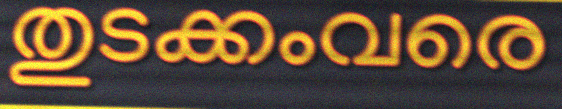
തുടക്കംവരെ